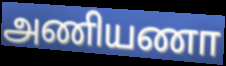
அணியணா